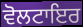
ਵੋਲਟਾਇਰ